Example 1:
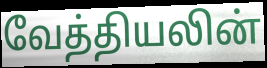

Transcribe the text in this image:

வேத்தியலின்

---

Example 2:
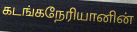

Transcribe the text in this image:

கடங்கநேரியானின்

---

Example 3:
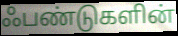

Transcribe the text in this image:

ஃபண்டுகளின்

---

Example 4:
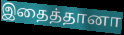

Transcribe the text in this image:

இதைத்தானா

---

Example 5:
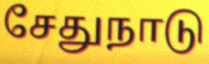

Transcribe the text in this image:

சேதுநாடு